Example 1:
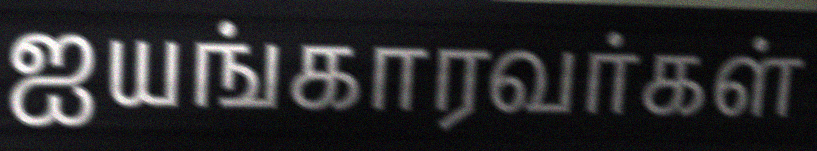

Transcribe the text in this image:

ஐயங்காரவர்கள்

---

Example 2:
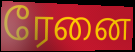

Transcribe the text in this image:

ரேனை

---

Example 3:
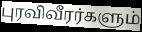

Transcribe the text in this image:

புரவிவீரர்களும்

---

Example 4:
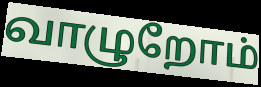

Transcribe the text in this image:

வாழுறோம்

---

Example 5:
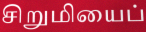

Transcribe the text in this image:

சிறுமியைப்